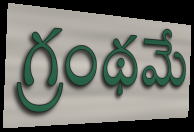
గ్రంథమే